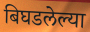
बिघडलेल्या